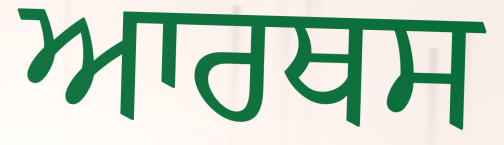
ਆਰਥਸ